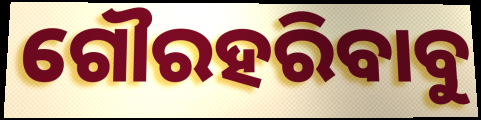
ଗୌରହରିବାବୁ